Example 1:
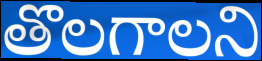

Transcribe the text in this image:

తొలగాలని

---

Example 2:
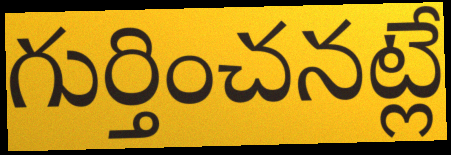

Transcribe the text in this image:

గుర్తించనట్లే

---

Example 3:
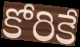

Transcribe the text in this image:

కోరికే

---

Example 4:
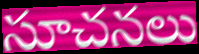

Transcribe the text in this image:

సూచనలు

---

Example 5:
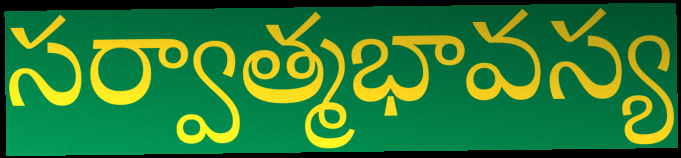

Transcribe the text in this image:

సర్వాత్మభావస్య